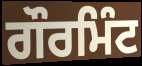
ਗੌਰਮਿੰਟ